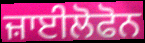
ਜ਼ਾਈਲੋਫੋਨ